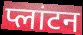
प्लांटन